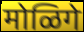
मोळिगे